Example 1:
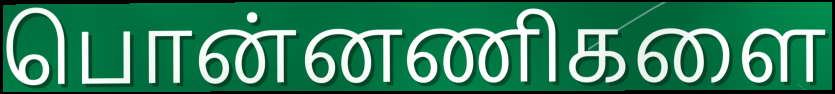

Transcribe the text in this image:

பொன்னணிகளை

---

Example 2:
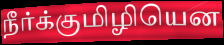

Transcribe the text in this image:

நீர்க்குமிழியென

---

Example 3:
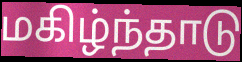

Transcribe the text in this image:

மகிழ்ந்தாடு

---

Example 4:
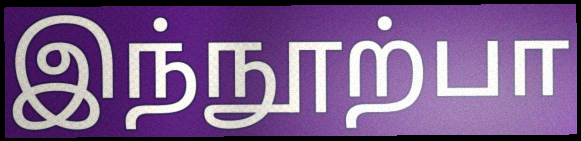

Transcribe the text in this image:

இந்நூற்பா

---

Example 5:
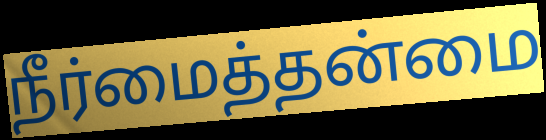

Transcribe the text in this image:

நீர்மைத்தன்மை